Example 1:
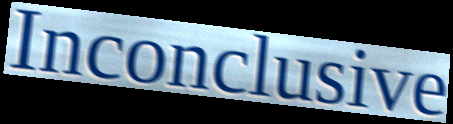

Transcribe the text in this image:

Inconclusive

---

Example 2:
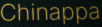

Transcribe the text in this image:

Chinappa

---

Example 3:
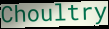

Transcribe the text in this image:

Choultry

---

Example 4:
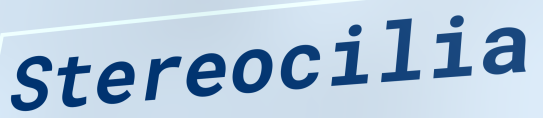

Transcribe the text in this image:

Stereocilia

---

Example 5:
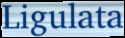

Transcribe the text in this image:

Ligulata